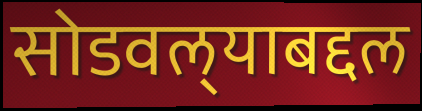
सोडवल्याबद्दल